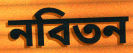
নবিতন